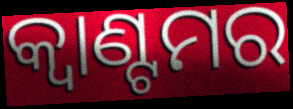
କ୍ୱାଣ୍ଟମର